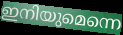
ഇനിയുമെന്നെ